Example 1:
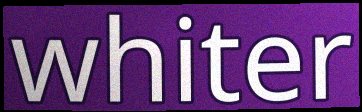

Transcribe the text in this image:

whiter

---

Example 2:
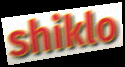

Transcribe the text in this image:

shiklo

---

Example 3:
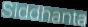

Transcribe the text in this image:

Siddhanta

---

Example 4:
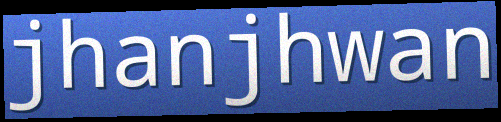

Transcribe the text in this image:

jhanjhwan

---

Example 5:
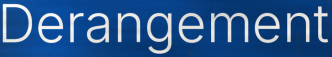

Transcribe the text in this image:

Derangement